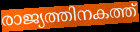
രാജ്യത്തിനകത്ത്